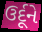
ઉર્દૂને